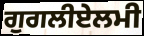
ਗੁਗਲੀਏਲਮੀ